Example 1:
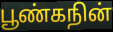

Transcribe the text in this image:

பூண்கநின்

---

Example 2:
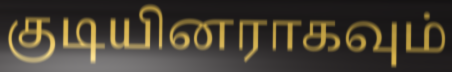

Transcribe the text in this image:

குடியினராகவும்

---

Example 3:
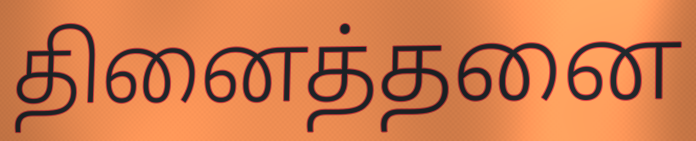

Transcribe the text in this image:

தினைத்தனை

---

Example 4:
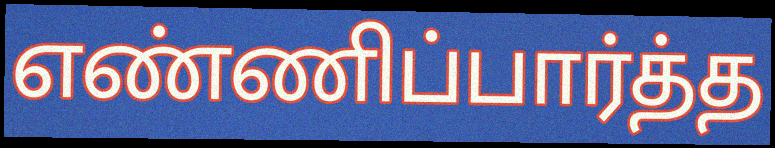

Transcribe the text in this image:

எண்ணிப்பார்த்த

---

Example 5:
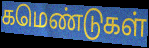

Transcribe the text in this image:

கமெண்டுகள்